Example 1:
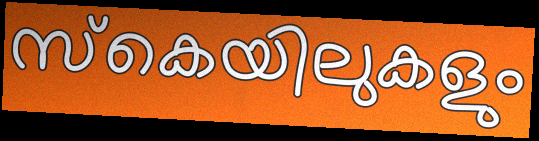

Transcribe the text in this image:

സ്കെയിലുകളും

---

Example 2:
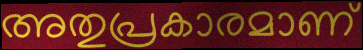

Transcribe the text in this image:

അതുപ്രകാരമാണ്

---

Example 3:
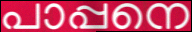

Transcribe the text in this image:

പാപ്പനെ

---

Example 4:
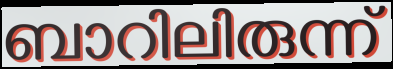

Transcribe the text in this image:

ബാറിലിരുന്ന്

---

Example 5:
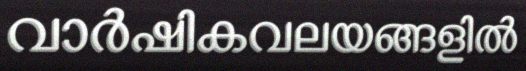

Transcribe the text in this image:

വാർഷികവലയങ്ങളിൽ